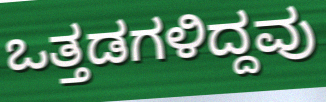
ಒತ್ತಡಗಳಿದ್ದವು